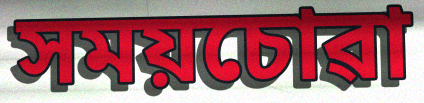
সময়চোৱা